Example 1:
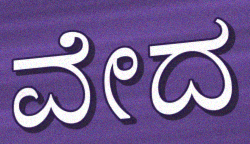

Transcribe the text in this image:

ವೇದ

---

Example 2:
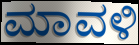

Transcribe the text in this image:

ಮಾವಳಿ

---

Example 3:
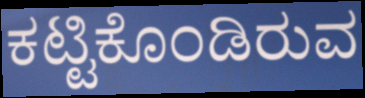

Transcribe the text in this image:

ಕಟ್ಟಿಕೊಂಡಿರುವ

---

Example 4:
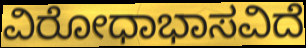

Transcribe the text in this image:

ವಿರೋಧಾಭಾಸವಿದೆ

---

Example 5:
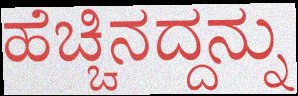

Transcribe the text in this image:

ಹೆಚ್ಚಿನದ್ದನ್ನು